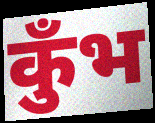
कुँभ